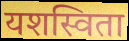
यशस्विता